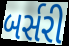
બર્સરી